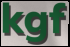
kgf